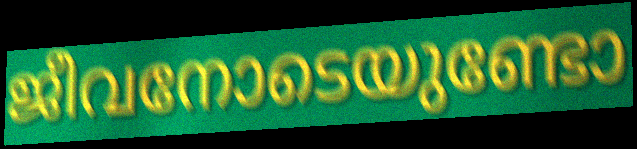
ജീവനോടെയുണ്ടോ